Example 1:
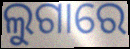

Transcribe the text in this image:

ଲୁଗାରେ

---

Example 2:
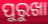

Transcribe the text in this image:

ପୁରୁଖା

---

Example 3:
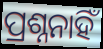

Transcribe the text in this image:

ପ୍ରଶ୍ନନାହିଁ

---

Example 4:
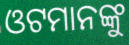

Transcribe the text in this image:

ଓଟମାନଙ୍କୁ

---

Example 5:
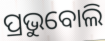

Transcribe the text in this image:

ପ୍ରଭୁବୋଲି